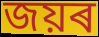
জয়ৰ